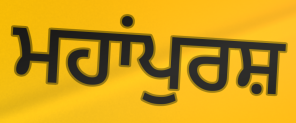
ਮਹਾਂਪੁਰਸ਼